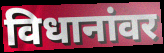
विधानांवर